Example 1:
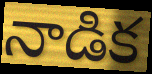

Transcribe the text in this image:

నాడిక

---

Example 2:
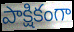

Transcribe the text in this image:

పాక్షికంగా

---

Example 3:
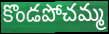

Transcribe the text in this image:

కొండపోచమ్మ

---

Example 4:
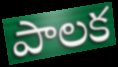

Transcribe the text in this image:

పాలక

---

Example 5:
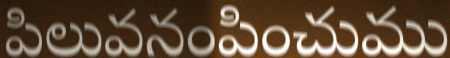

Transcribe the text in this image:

పిలువనంపించుము